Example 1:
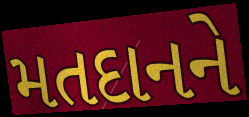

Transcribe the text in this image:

મતદાનને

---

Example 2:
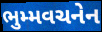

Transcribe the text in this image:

ભુમ્મવચનેન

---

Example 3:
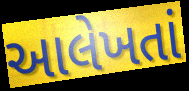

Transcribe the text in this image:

આલેખતાં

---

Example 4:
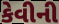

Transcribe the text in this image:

કેવીની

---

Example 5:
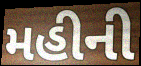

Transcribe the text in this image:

મહીની